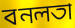
বনলতা